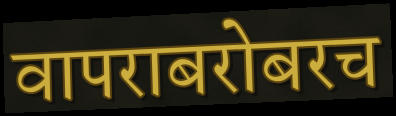
वापराबरोबरच